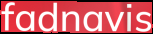
fadnavis